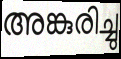
അങ്കുരിച്ചു